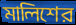
মালিশের